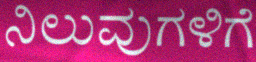
ನಿಲುವುಗಳಿಗೆ